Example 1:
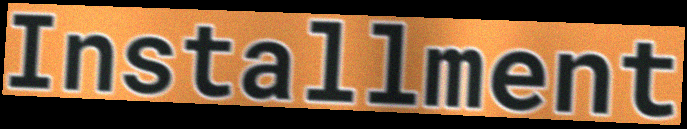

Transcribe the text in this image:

Installment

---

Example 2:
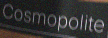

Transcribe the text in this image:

Cosmopolite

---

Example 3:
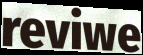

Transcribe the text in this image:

reviwe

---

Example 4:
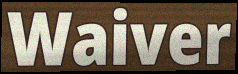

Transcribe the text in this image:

Waiver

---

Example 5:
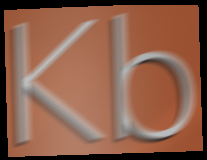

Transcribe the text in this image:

Kb